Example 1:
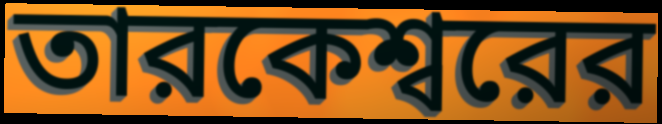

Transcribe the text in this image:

তারকেশ্বরের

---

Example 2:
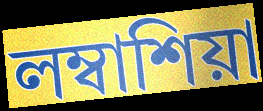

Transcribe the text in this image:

লম্বাশিয়া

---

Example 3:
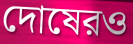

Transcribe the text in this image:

দোষেরও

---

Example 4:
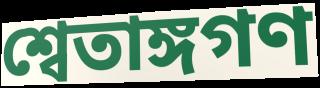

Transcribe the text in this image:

শ্বেতাঙ্গগণ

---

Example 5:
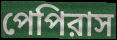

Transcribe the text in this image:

পেপিরাস